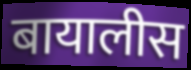
बायालीस